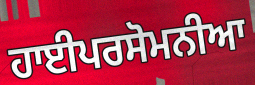
ਹਾਈਪਰਸੋਮਨੀਆ